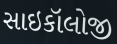
સાઇકૉલોજી